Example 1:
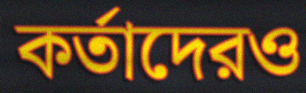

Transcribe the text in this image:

কর্তাদেরও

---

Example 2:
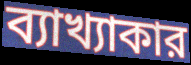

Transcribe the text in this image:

ব্যাখ্যাকার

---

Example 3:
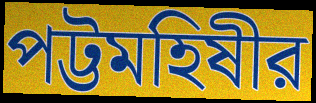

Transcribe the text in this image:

পট্টমহিষীর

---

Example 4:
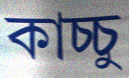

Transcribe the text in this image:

কাচ্চু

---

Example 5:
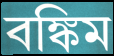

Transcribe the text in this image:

বঙ্কিম